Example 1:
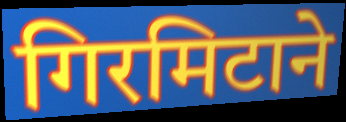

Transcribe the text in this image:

गिरमिटाने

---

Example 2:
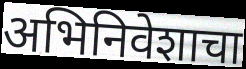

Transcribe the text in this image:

अभिनिवेशाचा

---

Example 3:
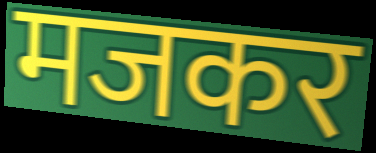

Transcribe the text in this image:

मजकर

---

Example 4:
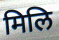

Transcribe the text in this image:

मिलि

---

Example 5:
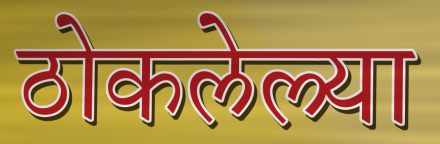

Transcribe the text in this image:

ठोकलेल्या